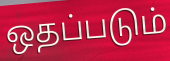
ஒதப்படும்